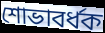
শোভাবর্ধক